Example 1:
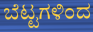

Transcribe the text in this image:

ಬೆಟ್ಟಗಳಿಂದ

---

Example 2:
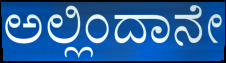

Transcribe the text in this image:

ಅಲ್ಲಿಂದಾನೇ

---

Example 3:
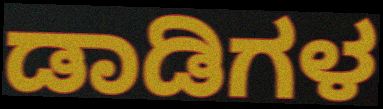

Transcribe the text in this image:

ಡಾಡಿಗಳ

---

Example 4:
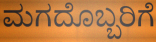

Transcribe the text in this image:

ಮಗದೊಬ್ಬರಿಗೆ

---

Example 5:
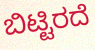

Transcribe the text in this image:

ಬಿಟ್ಟಿರದೆ